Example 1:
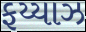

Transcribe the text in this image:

ફય્યાઝ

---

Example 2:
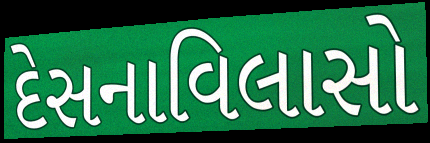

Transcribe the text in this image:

દેસનાવિલાસો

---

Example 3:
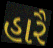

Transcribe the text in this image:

હારૈ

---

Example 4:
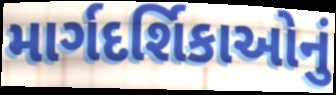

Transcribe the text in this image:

માર્ગદર્શિકાઓનું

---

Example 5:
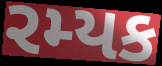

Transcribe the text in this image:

રમ્યક